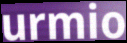
urmio